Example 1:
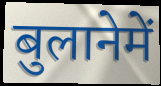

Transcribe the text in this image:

बुलानेमें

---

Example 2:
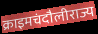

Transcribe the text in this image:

क्राइमचंदौलीराज्य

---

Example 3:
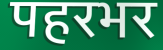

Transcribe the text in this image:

पहरभर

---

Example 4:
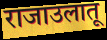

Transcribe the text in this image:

राजाउलातू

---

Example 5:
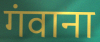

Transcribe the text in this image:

गंवाना